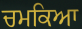
ਚਮਕਿਆ